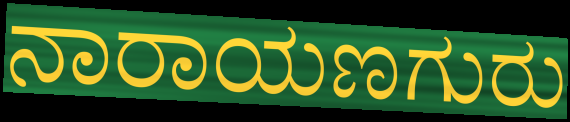
ನಾರಾಯಣಗುರು